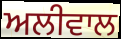
ਅਲੀਵਾਲ